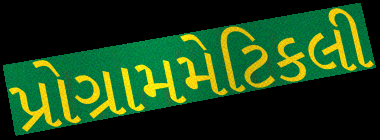
પ્રોગ્રામમેટિકલી